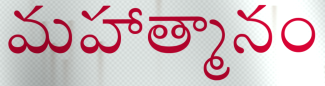
మహాత్మానం